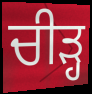
ਚੀੜ੍ਹ